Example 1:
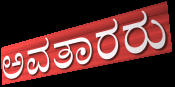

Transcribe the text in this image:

ಅವತಾರರು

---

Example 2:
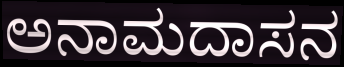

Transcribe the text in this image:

ಅನಾಮದಾಸನ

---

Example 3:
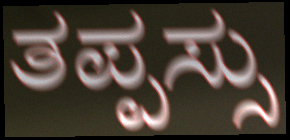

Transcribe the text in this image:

ತಪ್ಪಸ್ಸು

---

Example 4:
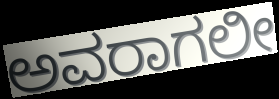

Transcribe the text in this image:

ಅವರಾಗಲೀ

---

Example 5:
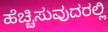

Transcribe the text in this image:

ಹೆಚ್ಚಿಸುವುದರಲ್ಲಿ